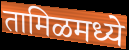
तामिळमध्ये